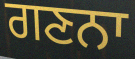
ਗਣਨਾ